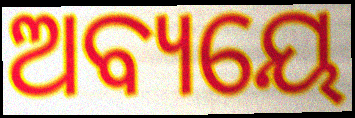
ଅବ୍ୟୟେ